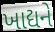
ખાદ્યને